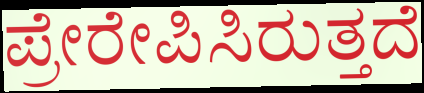
ಪ್ರೇರೇಪಿಸಿರುತ್ತದೆ